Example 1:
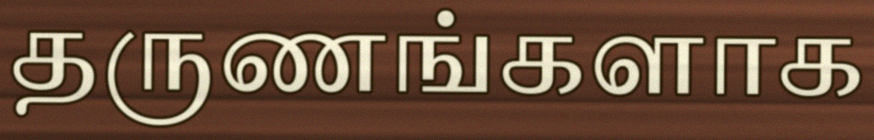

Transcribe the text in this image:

தருணங்களாக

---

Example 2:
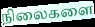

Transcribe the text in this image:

நிலைகளை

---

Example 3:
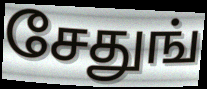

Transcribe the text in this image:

சேதுங்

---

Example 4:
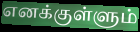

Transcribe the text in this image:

எனக்குள்ளும்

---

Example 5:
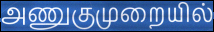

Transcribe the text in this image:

அணுகுமுறையில்